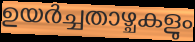
ഉയർച്ചതാഴ്ചകളും